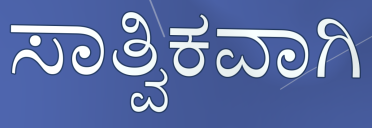
ಸಾತ್ವಿಕವಾಗಿ